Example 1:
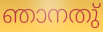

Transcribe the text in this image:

ഞാനതു്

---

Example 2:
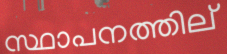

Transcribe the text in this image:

സ്ഥാപനത്തില്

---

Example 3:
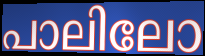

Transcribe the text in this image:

പാലിലോ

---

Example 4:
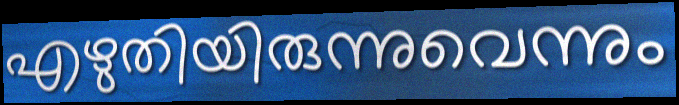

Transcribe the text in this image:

എഴുതിയിരുന്നുവെന്നും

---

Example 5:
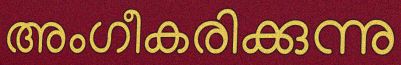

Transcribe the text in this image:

അംഗീകരിക്കുന്നു